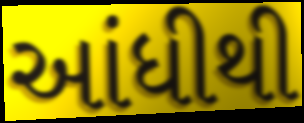
આંધીથી